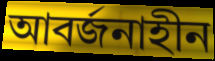
আবর্জনাহীন